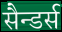
सैन्डर्स